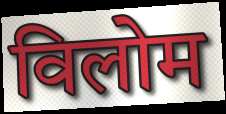
विलोम